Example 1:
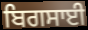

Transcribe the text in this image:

ਬਿਗਸਾਈ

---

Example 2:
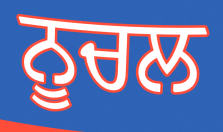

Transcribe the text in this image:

ਨੂਚਲ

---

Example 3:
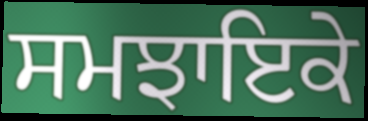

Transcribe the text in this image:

ਸਮਝਾਇਕੇ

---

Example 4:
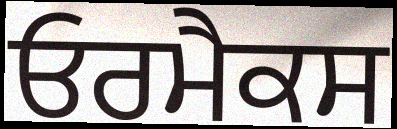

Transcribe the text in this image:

ਓਰਮੈਕਸ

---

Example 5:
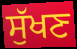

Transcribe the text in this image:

ਸੁੱਖਣ